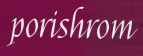
porishrom